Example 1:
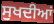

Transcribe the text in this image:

ਸੁਖਦੀਆਂ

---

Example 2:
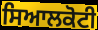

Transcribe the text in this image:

ਸਿਆਲਕੋਟੀ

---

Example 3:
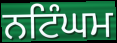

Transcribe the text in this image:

ਨਟਿੰਘਮ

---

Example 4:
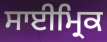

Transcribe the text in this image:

ਸਾਈਮ੍ਰਿਕ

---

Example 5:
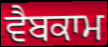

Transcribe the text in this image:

ਵੈਬਕਾਮ